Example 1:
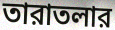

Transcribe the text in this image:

তারাতলার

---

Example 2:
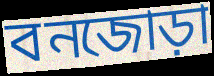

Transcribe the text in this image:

বনজোড়া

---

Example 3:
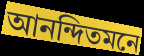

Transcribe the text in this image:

আনন্দিতমনে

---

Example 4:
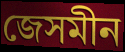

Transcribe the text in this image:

জেসমীন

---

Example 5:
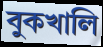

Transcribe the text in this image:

বুকখালি